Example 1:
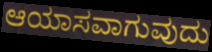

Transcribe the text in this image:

ಆಯಾಸವಾಗುವುದು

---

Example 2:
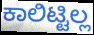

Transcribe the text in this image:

ಕಾಲಿಟ್ಟಿಲ್ಲ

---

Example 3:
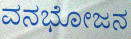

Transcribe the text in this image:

ವನಭೋಜನ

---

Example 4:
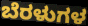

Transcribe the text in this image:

ಬೆರಳುಗಳ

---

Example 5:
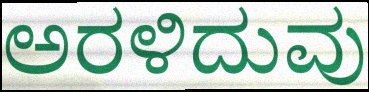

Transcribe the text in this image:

ಅರಳಿದುವು